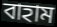
বাহাম